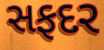
સફદર